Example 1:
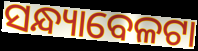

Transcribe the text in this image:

ସନ୍ଧ୍ୟାବେଳଟା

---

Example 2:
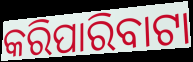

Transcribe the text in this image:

କରିପାରିବାଟା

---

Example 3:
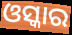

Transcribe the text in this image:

ଓସ୍କାର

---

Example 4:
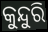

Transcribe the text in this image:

କୁନ୍ଦୁରି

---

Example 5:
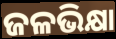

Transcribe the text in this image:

ଜଳଭିକ୍ଷା